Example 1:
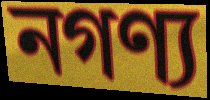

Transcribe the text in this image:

নগণ্য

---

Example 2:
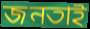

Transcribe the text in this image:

জনতাই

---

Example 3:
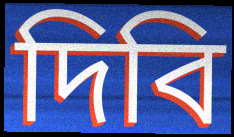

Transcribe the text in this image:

দিবি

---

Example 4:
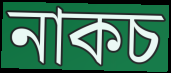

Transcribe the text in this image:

নাকচ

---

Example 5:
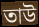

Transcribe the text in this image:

তাউ